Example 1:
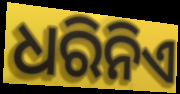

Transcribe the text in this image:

ଧରିନିଏ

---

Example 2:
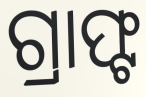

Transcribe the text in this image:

ଗ୍ରାଫ୍ଟ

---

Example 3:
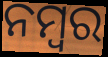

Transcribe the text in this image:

ନମ୍ବର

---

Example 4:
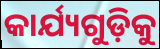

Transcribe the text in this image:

କାର୍ଯ୍ୟଗୁଡ଼ିକୁ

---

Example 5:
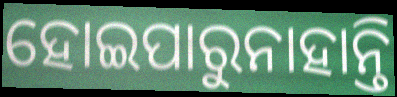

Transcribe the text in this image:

ହୋଇପାରୁନାହାନ୍ତି